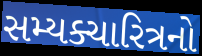
સમ્યક્ચારિત્રનો